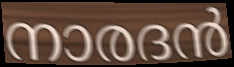
നാരദൻ